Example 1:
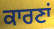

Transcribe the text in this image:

ਕਾਰਣਾਂ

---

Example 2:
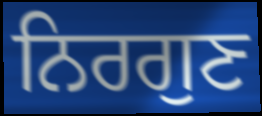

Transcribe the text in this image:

ਨਿਰਗੁਣ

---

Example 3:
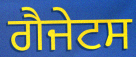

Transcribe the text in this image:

ਗੈਜੇਟਸ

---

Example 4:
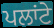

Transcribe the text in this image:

ਪਲਾਂਟੇ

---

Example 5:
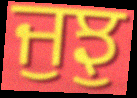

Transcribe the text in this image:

ਜੁਝੁ